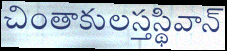
చింతాకులస్తస్థివాన్